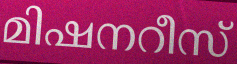
മിഷനറീസ്